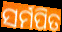
ସର୍ମପିତ